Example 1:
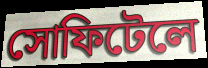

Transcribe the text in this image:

সোফিটেলে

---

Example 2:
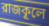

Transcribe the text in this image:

রাজকূলে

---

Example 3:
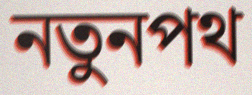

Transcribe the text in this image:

নতুনপথ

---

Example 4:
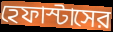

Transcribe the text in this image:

হেফাস্টাসের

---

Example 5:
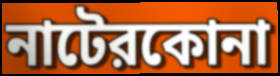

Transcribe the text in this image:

নাটেরকোনা